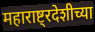
महाराष्ट्रदेशीच्या